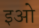
इओ